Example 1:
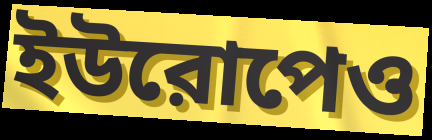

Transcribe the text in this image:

ইউরোপেও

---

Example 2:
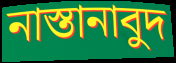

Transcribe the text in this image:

নাস্তানাবুদ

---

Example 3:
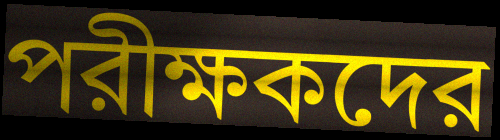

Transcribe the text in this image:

পরীক্ষকদের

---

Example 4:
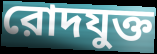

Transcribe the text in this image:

রোদযুক্ত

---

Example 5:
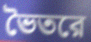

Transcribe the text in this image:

ভৈতরে